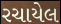
રચાયેલ